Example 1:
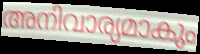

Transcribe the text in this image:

അനിവാര്യമാകും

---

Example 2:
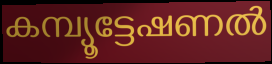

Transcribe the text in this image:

കമ്പ്യൂട്ടേഷണൽ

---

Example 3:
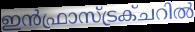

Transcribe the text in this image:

ഇൻഫ്രാസ്ട്രക്ചറിൽ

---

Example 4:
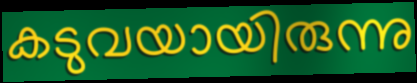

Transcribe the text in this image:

കടുവയായിരുന്നു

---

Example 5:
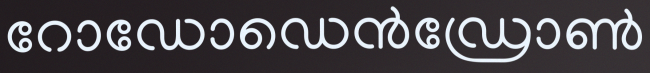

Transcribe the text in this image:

റോഡോഡെൻഡ്രോൺ